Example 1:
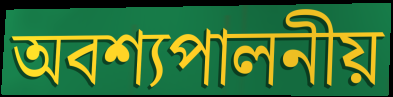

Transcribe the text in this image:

অবশ্যপালনীয়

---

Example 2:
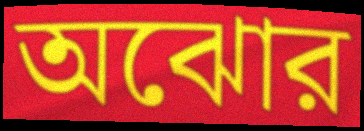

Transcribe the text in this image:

অঝোর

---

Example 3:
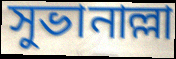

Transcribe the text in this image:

সুভানাল্লা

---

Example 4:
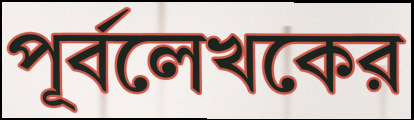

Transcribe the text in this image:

পূর্বলেখকের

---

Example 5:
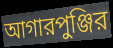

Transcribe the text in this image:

আগারপুঞ্জির